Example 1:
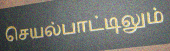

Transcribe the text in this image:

செயல்பாட்டிலும்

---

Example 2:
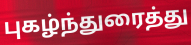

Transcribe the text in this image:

புகழ்ந்துரைத்து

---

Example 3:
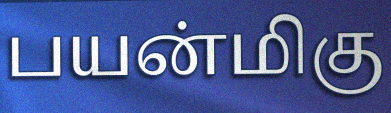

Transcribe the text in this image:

பயன்மிகு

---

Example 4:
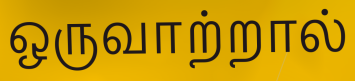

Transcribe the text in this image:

ஒருவாற்றால்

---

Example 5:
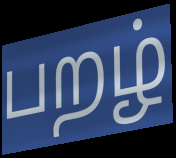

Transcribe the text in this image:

பறழ்